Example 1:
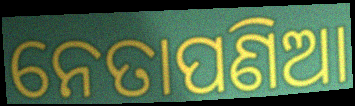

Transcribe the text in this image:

ନେତାପଣିଆ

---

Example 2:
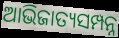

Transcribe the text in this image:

ଆଭିଜାତ୍ୟସମ୍ପନ୍ନ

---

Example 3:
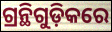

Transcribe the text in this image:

ଗ୍ରନ୍ଥିଗୁଡ଼ିକରେ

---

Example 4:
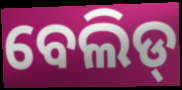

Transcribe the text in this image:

ବେଲିଡ୍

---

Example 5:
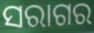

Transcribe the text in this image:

ସରାଗର